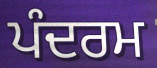
ਪੰਦਰਮ